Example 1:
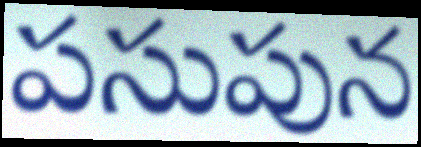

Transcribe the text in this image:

పసుపున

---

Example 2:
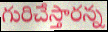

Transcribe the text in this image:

గురిచేస్తారన్న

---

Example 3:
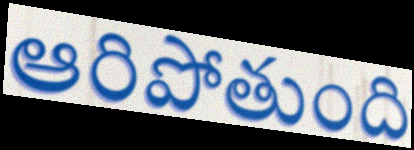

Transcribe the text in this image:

ఆరిపోతుంది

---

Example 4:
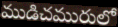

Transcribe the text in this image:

ముడిచమురులో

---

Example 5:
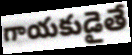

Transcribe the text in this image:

గాయకుడైతే